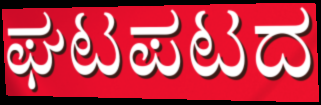
ಘಟಪಟದ